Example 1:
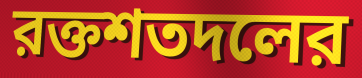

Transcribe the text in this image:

রক্তশতদলের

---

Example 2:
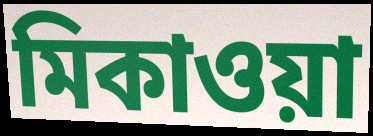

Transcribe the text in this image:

মিকাওয়া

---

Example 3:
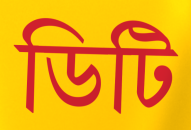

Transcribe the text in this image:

ডিটি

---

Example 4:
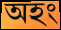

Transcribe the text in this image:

অহং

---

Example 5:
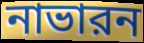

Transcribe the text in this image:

নাভারন